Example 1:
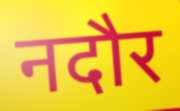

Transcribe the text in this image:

नदौर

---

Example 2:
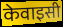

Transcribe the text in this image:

केवाइसी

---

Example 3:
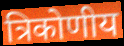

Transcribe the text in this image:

त्रिकोणीय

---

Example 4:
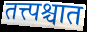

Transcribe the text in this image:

तत्त्पश्चात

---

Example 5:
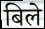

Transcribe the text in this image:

बिले